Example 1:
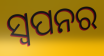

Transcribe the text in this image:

ସ୍ୱପନର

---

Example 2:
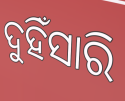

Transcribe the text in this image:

ଦୁହିଁସାରି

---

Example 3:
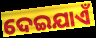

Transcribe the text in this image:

ଦେଇଯାଏଁ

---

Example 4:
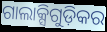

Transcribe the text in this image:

ଗାଲାକ୍ସିଗୁଡ଼ିକର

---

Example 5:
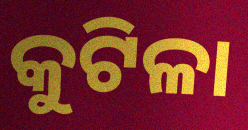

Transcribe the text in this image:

କୁଟିଳା